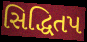
સિદ્ધિતપ